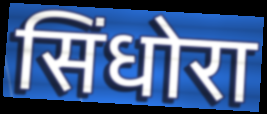
सिंधोरा